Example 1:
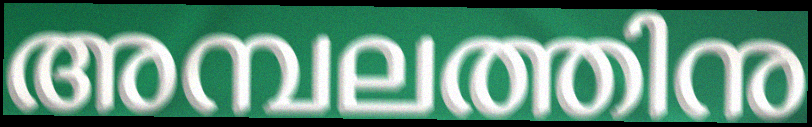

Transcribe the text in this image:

അമ്പലത്തിനു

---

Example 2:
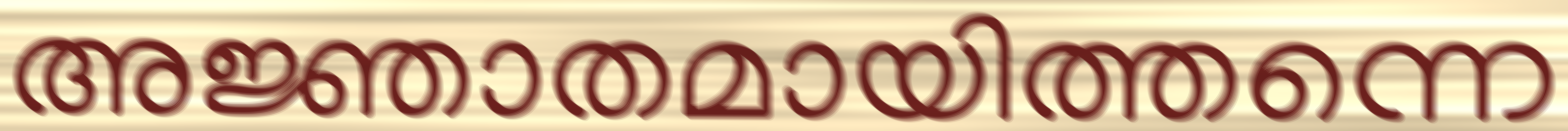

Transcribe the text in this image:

അജ്ഞാതമായിത്തന്നെ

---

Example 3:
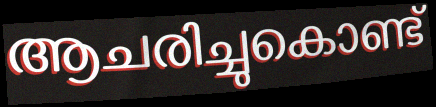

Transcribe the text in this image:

ആചരിച്ചുകൊണ്ട്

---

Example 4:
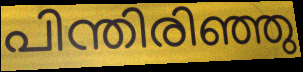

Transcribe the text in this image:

പിന്തിരിഞ്ഞു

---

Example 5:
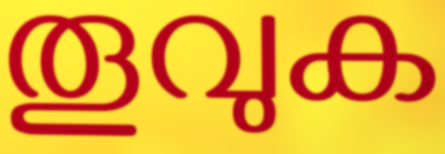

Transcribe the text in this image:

തൂവുക